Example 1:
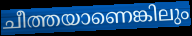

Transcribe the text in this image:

ചീത്തയാണെങ്കിലും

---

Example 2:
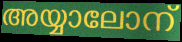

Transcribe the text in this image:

അയ്യാലോന്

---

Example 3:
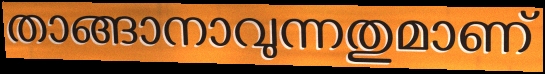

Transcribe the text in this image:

താങ്ങാനാവുന്നതുമാണ്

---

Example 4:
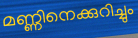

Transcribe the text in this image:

മണ്ണിനെക്കുറിച്ചും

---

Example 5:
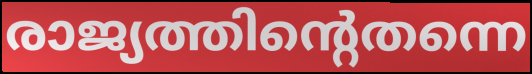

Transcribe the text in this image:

രാജ്യത്തിന്റെതന്നെ